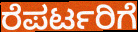
ರೆಪರ್ಟರಿಗೆ